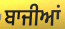
ਬਾਜੀਆਂ